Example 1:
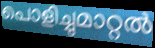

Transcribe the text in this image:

പൊളിച്ചുമാറ്റൽ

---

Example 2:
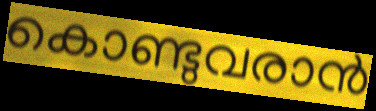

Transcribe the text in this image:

കൊണ്ടുവരാൻ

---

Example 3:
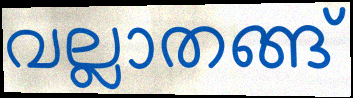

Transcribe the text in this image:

വല്ലാതങ്ങ്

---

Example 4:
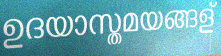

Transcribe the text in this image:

ഉദയാസ്തമയങ്ങള്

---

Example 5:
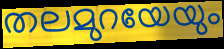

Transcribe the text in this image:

തലമുറയേയും